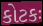
કોટકઃ